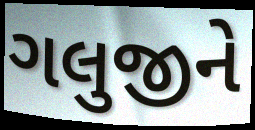
ગલુજીને